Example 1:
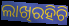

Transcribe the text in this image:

ଲାଖିରହିଚି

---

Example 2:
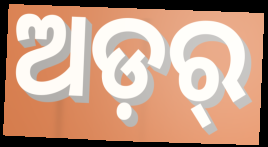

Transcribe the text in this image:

ଅଡ଼ର୍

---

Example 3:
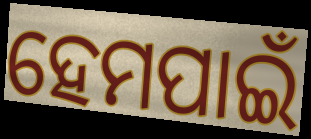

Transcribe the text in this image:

ହେମପାଇଁ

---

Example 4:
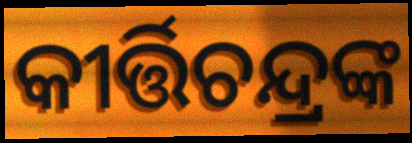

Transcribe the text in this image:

କୀର୍ତ୍ତିଚନ୍ଦ୍ରଙ୍କ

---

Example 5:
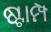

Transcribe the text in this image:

ଷ୍ଟାମ୍ପ